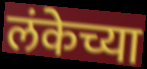
लंकेच्या